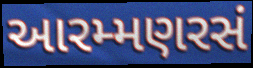
આરમ્મણરસં